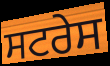
ਸਟਰੇਸ